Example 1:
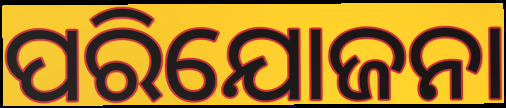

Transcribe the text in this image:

ପରିଯୋଜନା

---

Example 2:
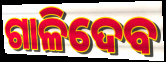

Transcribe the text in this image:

ଗାଳିଦେବ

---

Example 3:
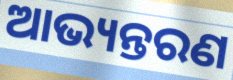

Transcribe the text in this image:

ଆଭ୍ୟନ୍ତରଣ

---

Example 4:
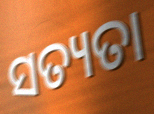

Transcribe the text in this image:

ସତ୍ୟତା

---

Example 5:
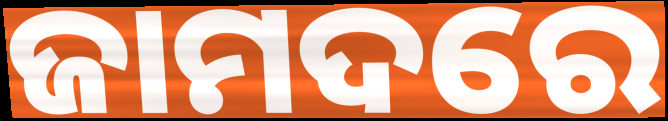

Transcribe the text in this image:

ଜାମଦରେ